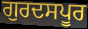
ਗੁਰਦਸਪੂਰ